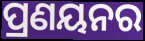
ପ୍ରଣୟନର